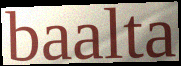
baalta